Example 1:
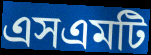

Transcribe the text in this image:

এসএমটি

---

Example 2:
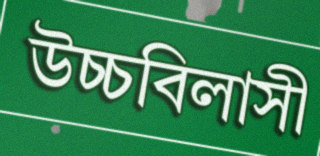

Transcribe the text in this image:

উচ্চবিলাসী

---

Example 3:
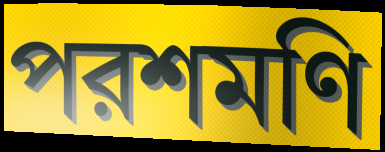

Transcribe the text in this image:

পরশমণি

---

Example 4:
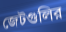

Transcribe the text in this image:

জেটগুলির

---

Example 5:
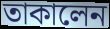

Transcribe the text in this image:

তাকালেন